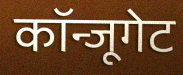
कॉन्जूगेट